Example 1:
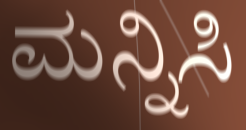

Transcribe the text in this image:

ಮನ್ನಿಸಿ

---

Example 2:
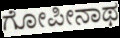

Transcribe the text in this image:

ಗೋಪೀನಾಥ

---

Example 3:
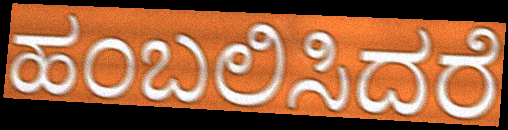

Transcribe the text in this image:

ಹಂಬಲಿಸಿದರೆ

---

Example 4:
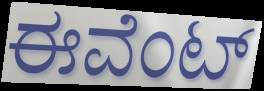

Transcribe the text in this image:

ಈವೆಂಟ್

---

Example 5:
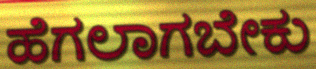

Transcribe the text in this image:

ಹೆಗಲಾಗಬೇಕು